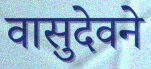
वासुदेवने